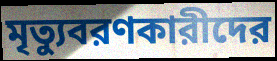
মৃত্যুবরণকারীদের